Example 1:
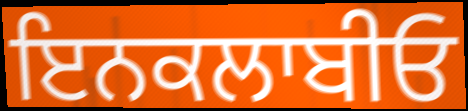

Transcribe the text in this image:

ਇਨਕਲਾਬੀਓ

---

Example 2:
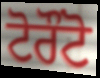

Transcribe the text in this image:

ਟੋਰੌੰਟੋ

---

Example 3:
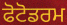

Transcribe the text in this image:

ਫੋਟੋਡਰਮ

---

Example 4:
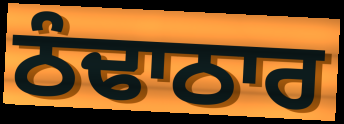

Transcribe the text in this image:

ਠੰਢਾਠਾਰ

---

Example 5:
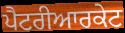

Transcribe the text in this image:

ਪੈਟਰੀਆਰਕੇਟ